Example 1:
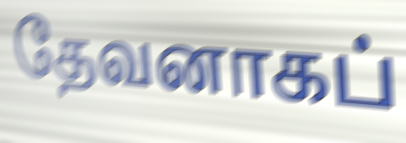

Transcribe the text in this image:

தேவனாகப்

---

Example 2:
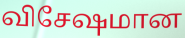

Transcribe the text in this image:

விசேஷமான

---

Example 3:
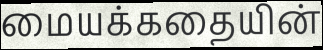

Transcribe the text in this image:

மையக்கதையின்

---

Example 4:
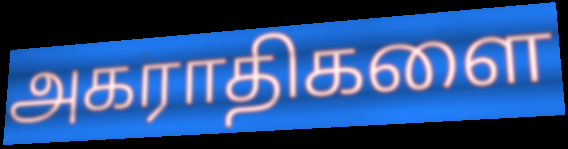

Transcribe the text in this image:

அகராதிகளை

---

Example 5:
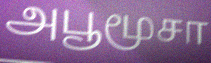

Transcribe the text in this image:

அபூமூசா